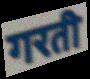
गरती